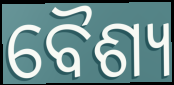
ବୈଶ୍ୟ